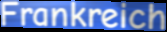
Frankreich